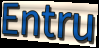
Entru